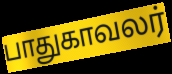
பாதுகாவலர்